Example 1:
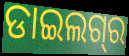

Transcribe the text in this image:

ଡାଇଲଗ୍‌ର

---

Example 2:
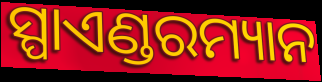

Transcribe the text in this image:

ସ୍ପାଏଣ୍ଡରମ୍ୟାନ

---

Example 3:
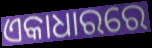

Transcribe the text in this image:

ଏକାଧାରରେ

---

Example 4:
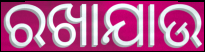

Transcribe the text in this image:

ରଖାଯାଉ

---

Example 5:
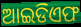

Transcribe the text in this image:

ଆଇଡିଏଫ